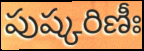
పుష్కరిణీః